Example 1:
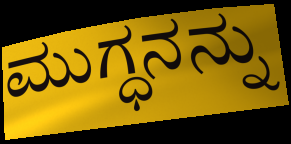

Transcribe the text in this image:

ಮುಗ್ಧನನ್ನು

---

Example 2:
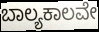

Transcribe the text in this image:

ಬಾಲ್ಯಕಾಲವೇ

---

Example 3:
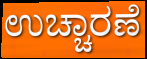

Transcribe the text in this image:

ಉಚ್ಚಾರಣೆ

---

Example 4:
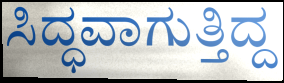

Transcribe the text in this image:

ಸಿದ್ಧವಾಗುತ್ತಿದ್ದ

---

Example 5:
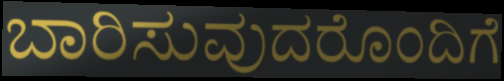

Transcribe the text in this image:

ಬಾರಿಸುವುದರೊಂದಿಗೆ